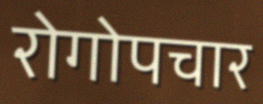
रोगोपचार